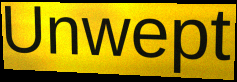
Unwept